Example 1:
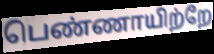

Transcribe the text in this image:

பெண்ணாயிற்றே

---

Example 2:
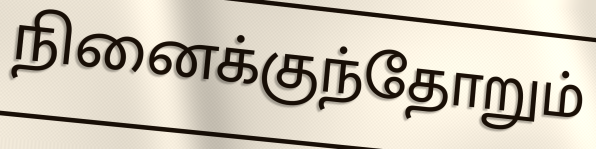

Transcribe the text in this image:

நினைக்குந்தோறும்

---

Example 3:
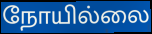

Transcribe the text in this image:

நோயில்லை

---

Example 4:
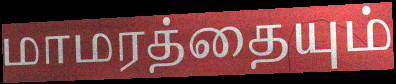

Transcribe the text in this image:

மாமரத்தையும்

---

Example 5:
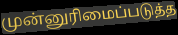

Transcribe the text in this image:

முன்னுரிமைப்படுத்த